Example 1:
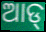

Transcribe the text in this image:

ଆଡ୍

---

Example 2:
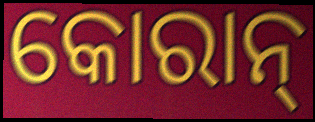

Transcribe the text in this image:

କୋରାନ୍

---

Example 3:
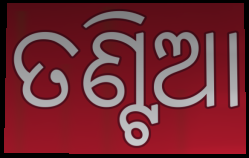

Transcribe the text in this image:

ତଣ୍ଟିଆ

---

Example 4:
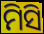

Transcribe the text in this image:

ମିସି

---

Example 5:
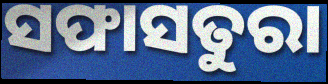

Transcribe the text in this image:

ସଫାସତୁରା